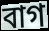
বাগ